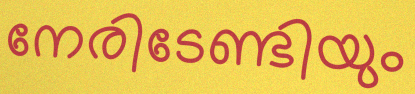
നേരിടേണ്ടിയും